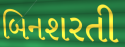
બિનશરતી